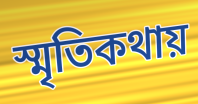
স্মৃতিকথায়